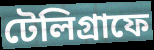
টেলিগ্রাফে